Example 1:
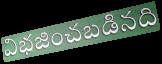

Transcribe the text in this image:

విభజించబడినది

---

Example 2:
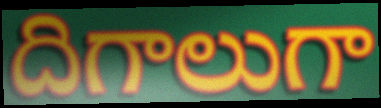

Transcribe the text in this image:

దిగాలుగా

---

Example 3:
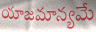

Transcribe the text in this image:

యాజమాన్యమే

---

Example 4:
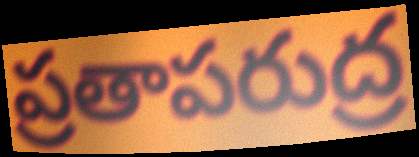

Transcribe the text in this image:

ప్రతాపరుద్ర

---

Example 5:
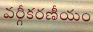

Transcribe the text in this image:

వర్గీకరణీయం